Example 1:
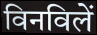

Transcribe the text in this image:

विनविलें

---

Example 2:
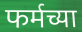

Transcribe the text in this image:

फर्मच्या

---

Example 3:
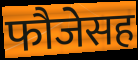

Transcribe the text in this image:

फौजेसह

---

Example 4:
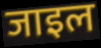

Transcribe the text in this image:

जाइल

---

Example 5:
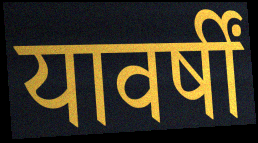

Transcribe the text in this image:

यावर्षीं